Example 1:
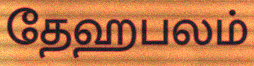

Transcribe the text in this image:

தேஹபலம்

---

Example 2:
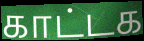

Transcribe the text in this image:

காட்டக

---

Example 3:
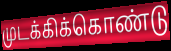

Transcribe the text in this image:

முடக்கிக்கொண்டு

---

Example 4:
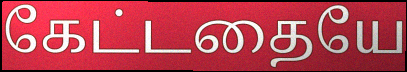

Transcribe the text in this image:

கேட்டதையே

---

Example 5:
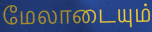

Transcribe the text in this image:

மேலாடையும்